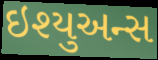
ઇશ્યુઅન્સ